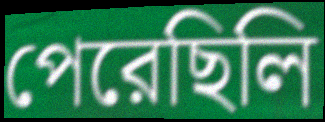
পেরেছিলি